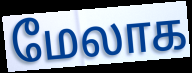
மேலாக